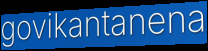
govikantanena